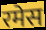
रमेस